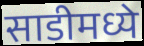
साडीमध्ये